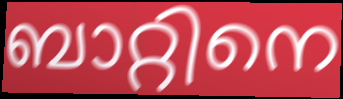
ബാറ്റിനെ